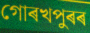
গোৰখপুৰৰ